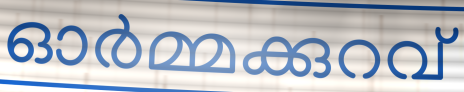
ഓർമ്മക്കുറവ്